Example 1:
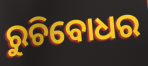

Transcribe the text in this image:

ରୁଚିବୋଧର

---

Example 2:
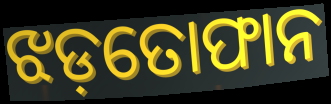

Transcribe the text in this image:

ଝଡ଼ତୋଫାନ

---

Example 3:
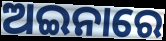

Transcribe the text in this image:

ଅଇନାରେ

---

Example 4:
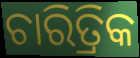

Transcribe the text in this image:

ଚାରିତ୍ରିକ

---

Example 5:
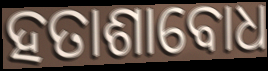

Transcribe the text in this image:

ହତାଶାବୋଧ